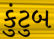
કુંટુબ